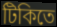
টিকিতে